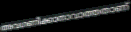
അവഗണിക്കാനാവാത്തതാണ്